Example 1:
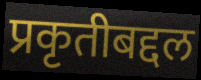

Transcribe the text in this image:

प्रकृतीबद्दल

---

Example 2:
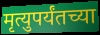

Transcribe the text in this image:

मृत्युपर्यंतच्या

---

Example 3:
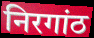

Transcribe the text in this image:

निरगांठ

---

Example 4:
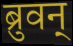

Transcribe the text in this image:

ब्रुवन्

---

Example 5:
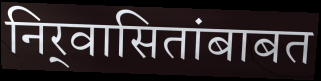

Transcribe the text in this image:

निर्वासितांबाबत